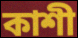
কাশী